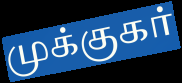
முக்குகர்